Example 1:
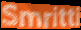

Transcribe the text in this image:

Smritti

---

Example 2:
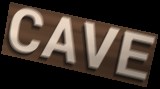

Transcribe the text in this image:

CAVE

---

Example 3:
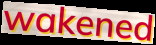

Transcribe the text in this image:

wakened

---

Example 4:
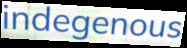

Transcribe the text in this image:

indegenous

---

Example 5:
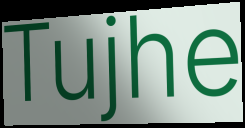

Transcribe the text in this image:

Tujhe